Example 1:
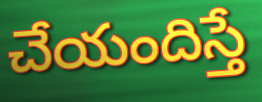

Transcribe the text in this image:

చేయందిస్తే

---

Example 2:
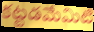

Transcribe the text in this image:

కట్టడమేమిటి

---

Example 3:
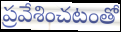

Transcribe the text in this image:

ప్రవేశించటంతో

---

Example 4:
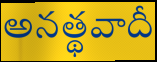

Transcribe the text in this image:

అనత్థవాదీ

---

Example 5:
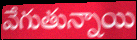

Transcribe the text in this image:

వేగుతున్నాయి